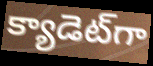
క్యాడెట్‌గా